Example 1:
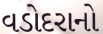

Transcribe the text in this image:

વડોદરાનો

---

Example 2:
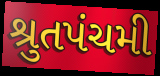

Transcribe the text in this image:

શ્રુતપંચમી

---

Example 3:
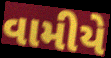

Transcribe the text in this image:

વામીયે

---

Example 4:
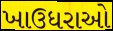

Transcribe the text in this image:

ખાઉધરાઓ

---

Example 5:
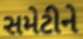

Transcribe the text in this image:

સમેટીને